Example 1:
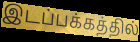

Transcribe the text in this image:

இடப்பக்கத்தில்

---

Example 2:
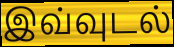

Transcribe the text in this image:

இவ்வுடல்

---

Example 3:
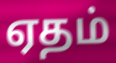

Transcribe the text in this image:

ஏதம்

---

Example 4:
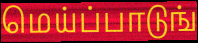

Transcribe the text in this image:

மெய்ப்பாடுங்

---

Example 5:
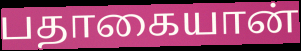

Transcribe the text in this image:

பதாகையான்